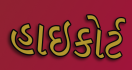
હાઇકોર્ટ